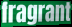
fragrant